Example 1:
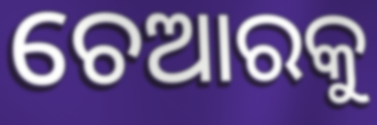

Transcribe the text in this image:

ଚେଆରକୁ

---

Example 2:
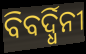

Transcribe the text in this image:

ବିବର୍ଦ୍ଧିନୀ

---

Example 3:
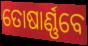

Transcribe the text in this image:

ତୋଷାର୍ଣ୍ଣବେ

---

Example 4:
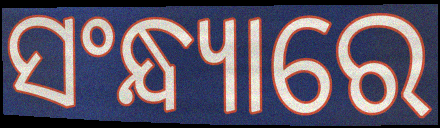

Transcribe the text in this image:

ସଂନ୍ଧ୍ଯାରେ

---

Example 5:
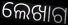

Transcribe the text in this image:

ଲେଖାଗ